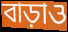
বাড়াও